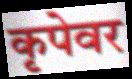
कृपेवर